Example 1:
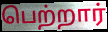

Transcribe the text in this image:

பெற்றார்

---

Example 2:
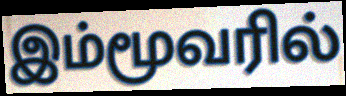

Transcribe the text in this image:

இம்மூவரில்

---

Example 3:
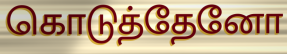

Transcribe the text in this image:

கொடுத்தேனோ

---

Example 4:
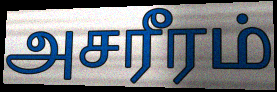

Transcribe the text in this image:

அசரீரம்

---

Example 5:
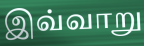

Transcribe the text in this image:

இவ்வாறு